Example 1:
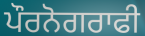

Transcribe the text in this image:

ਪੌਰਨੋਗਰਾਫੀ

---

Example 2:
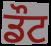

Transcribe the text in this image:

ਡੌਟ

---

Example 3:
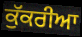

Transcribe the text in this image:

ਕੁੱਕਰੀਆ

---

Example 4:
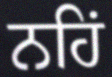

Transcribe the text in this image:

ਨਹਿਂ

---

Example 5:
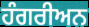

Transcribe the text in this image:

ਹੰਗਰੀਅਨ